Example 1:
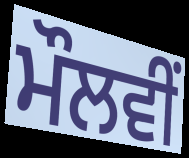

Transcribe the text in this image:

ਮੌਲਵੀਂ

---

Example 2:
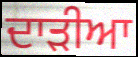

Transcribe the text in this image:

ਦਾੜੀਆ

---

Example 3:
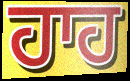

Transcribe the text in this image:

ਹਾਹ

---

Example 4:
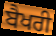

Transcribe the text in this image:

ਬੈਖਰੀ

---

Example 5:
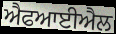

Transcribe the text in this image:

ਐਫਆਈਐਲ